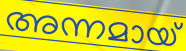
അന്നമായ്